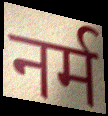
नर्म